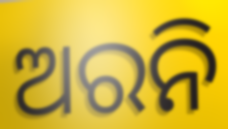
ଅରନି